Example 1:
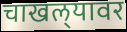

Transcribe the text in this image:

चाखल्यावर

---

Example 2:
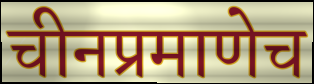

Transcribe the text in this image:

चीनप्रमाणेच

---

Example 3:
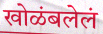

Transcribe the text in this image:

खोळंबलेलं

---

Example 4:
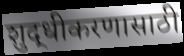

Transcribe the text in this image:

शुद्धीकरणासाठी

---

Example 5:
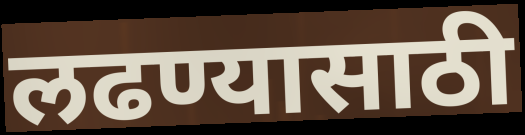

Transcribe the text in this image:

लढण्यासाठी